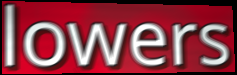
lowers